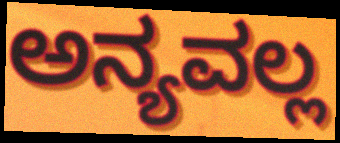
ಅನ್ಯವಲ್ಲ